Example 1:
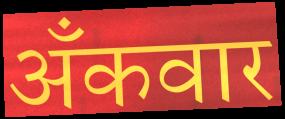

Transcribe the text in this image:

अँकवार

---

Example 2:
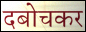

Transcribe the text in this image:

दबोचकर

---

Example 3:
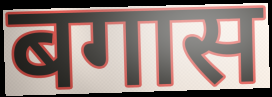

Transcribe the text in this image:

बगास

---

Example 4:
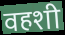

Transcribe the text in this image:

वहशी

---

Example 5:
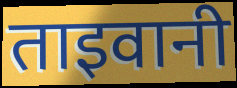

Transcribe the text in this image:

ताइवानी